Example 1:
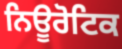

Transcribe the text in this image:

ਨਿਊਰੋਟਿਕ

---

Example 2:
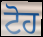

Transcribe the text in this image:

ਟੋਹ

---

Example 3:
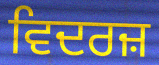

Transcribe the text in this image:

ਵਿਦਰਜ਼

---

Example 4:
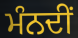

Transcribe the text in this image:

ਮੰਨਦੀਂ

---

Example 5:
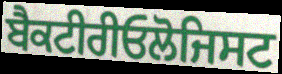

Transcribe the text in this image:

ਬੈਕਟੀਰੀਓਲੋਜਿਸਟ